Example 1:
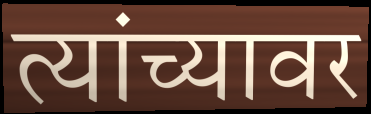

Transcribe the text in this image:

त्यांच्यावर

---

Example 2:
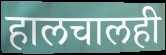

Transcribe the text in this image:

हालचालही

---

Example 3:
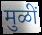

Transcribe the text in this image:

मुळीं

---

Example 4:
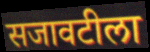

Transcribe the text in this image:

सजावटीला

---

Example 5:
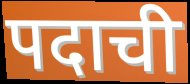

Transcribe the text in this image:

पदाची